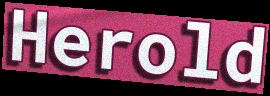
Herold